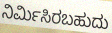
ನಿರ್ಮಿಸಿರಬಹುದು